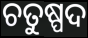
ଚତୁଷ୍ପଦ